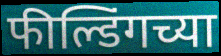
फील्डिंगच्या